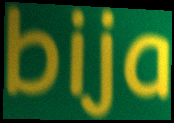
bija